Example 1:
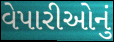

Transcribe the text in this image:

વેપારીઓનું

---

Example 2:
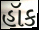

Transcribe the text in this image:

હૉક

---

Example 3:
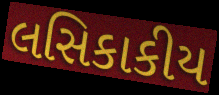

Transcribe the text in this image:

લસિકાકીય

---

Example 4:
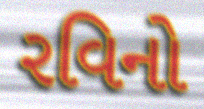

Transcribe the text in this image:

રવિનો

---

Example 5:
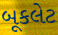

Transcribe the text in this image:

બૂકલેટ